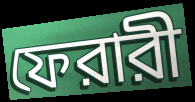
ফেরারী